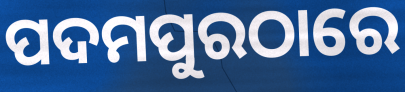
ପଦମପୁରଠାରେ